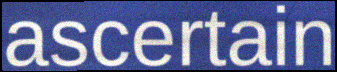
ascertain